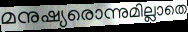
മനുഷ്യരൊന്നുമില്ലാതെ